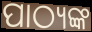
ପାଠ୍ୟଙ୍କ